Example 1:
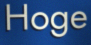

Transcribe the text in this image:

Hoge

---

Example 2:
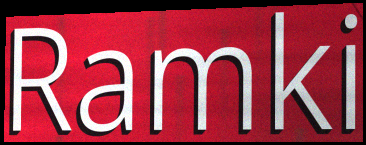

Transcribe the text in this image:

Ramki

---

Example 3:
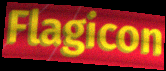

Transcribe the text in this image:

Flagicon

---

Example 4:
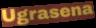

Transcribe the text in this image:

Ugrasena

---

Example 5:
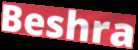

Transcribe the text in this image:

Beshra